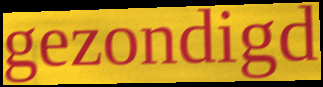
gezondigd